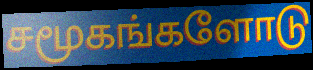
சமூகங்களோடு